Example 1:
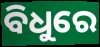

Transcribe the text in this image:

ବିଧୁରେ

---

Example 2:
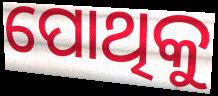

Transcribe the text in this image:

ପୋଥିକୁ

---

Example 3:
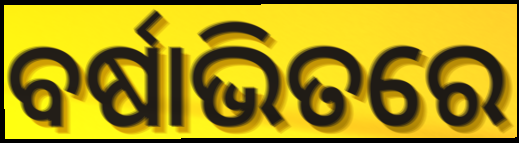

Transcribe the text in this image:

ବର୍ଷାଭିତରେ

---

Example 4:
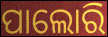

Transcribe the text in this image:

ପାଲୋରି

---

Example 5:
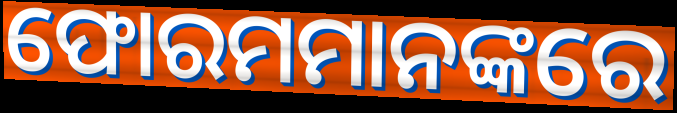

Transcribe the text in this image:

ଫୋରମମାନଙ୍କରେ